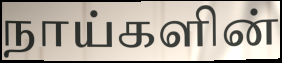
நாய்களின்